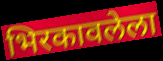
भिरकावलेला